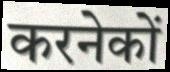
करनेकों